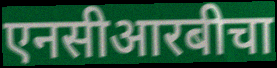
एनसीआरबीचा